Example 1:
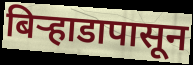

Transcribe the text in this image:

बिऱ्हाडापासून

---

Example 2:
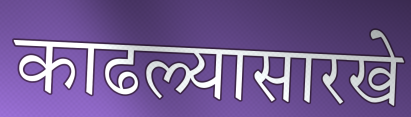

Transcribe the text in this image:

काढल्यासारखे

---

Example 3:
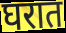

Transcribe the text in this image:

घरात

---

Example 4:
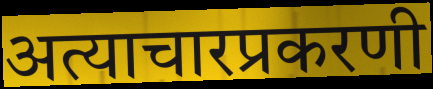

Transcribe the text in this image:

अत्याचारप्रकरणी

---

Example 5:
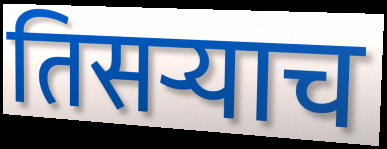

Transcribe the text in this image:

तिसऱ्याच